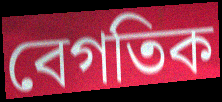
বেগতিক